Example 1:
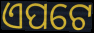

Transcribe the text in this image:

ଏପଟେ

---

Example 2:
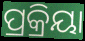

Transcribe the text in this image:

ପ୍ରକ୍ରିୟା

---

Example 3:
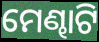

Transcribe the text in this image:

ମେଣ୍ଢାଟି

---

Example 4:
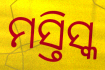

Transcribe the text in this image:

ମସ୍ତିସ୍କ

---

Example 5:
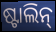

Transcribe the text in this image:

ଷ୍ଟାଲିନ୍